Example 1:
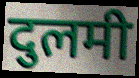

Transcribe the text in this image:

दुलमी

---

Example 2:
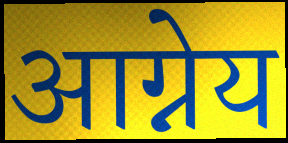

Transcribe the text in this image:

आग्नेय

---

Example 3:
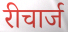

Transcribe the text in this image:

रीचार्ज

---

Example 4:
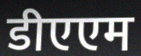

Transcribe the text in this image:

डीएएम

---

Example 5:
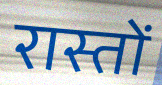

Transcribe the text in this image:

रास्‍तों